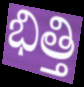
భిత్తి